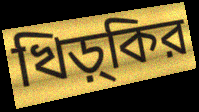
খিড়্‌কির